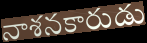
నాశనకారుడు